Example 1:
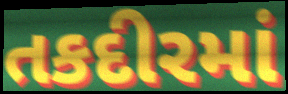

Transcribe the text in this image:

તકદીરમાં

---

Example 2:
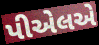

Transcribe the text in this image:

પીએલએ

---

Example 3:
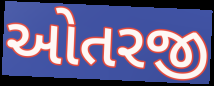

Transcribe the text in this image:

ઓતરજી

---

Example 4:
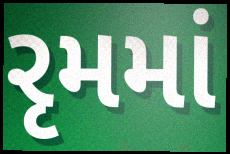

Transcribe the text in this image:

રૃમમાં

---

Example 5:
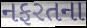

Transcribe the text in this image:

નફરતના